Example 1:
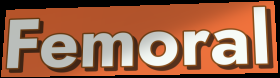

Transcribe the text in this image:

Femoral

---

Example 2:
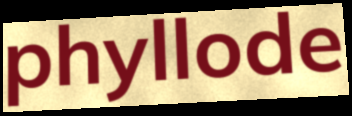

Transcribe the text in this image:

phyllode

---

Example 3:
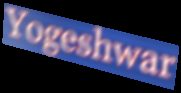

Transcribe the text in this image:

Yogeshwar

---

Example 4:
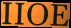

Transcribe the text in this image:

IIOE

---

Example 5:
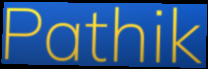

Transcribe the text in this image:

Pathik